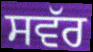
ਸਵੱਰ